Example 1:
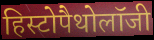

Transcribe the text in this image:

हिस्टोपैथोलॉजी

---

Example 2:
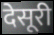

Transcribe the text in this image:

देसूरी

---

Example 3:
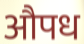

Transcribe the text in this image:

औपध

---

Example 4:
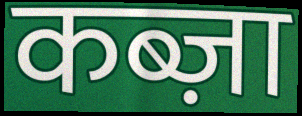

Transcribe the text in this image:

कब्ज़ा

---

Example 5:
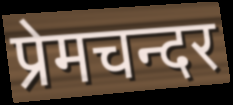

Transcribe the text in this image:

प्रेमचन्दर